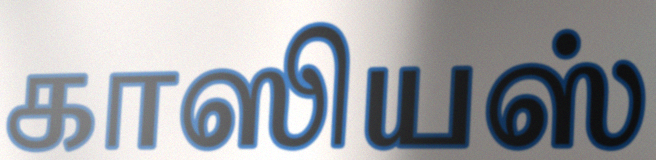
காஸியஸ்